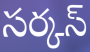
సర్కస్